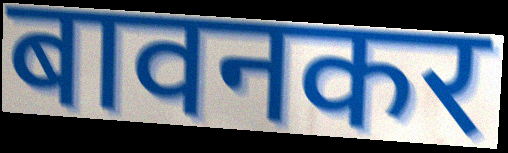
बावनकर